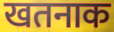
खतनाक